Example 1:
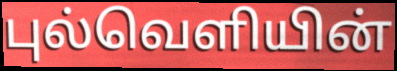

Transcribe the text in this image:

புல்வெளியின்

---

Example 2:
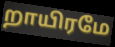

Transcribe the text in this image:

றாயிரமே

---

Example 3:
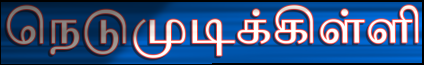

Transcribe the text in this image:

நெடுமுடிக்கிள்ளி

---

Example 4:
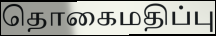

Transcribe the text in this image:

தொகைமதிப்பு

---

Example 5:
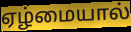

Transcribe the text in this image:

ஏழ்மையால்